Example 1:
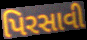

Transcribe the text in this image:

પિરસાવી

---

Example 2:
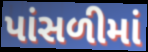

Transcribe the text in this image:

પાંસળીમાં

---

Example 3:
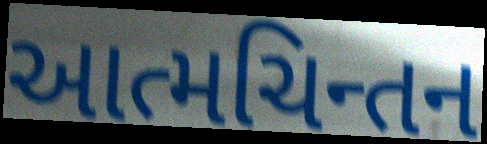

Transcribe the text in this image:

આત્મચિન્તન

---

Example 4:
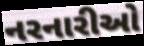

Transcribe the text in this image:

નરનારીઓ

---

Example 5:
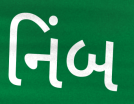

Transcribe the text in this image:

નિંબ